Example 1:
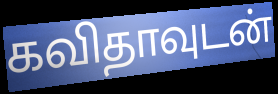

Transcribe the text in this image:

கவிதாவுடன்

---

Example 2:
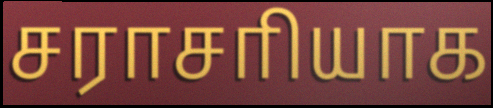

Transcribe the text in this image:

சராசரியாக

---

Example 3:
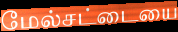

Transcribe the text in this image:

மேல்சட்டையை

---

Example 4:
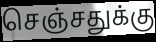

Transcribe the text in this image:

செஞ்சதுக்கு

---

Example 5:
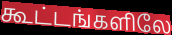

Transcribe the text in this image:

கூட்டங்களிலே